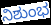
ನಿಶುಂಭ